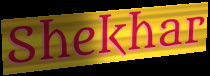
Shekhar